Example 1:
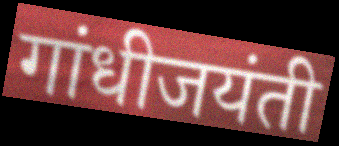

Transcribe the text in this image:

गांधीजयंती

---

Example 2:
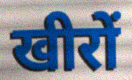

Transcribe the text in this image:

खीरों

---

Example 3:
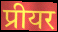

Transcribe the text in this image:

प्रीयर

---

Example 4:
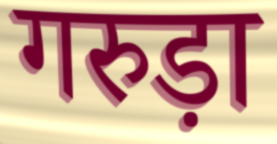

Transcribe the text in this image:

गरुड़ा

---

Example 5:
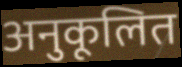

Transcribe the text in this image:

अनुकूलित